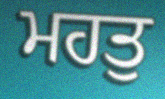
ਮਹਤੁ